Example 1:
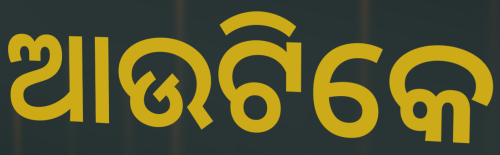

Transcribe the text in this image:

ଆଉଟିକେ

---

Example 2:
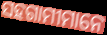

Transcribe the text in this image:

ସହଗାମୀମାନେ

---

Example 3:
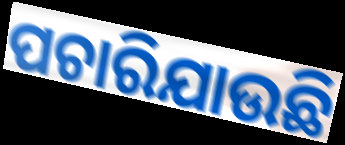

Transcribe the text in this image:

ପଚାରିଯାଉଛି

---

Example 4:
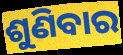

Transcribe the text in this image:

ଶୁଣିବାର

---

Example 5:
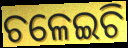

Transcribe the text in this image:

ଚଳେଇଚି